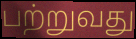
பற்றுவது